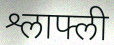
श्लाफ्ली